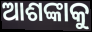
ଆଶଙ୍କାକୁ